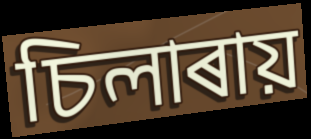
চিলাৰায়